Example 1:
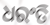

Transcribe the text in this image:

ଧରଂତି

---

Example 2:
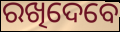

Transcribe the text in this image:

ରଖିଦେବେ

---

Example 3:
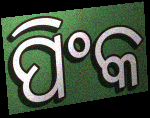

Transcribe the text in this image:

ପିଂକ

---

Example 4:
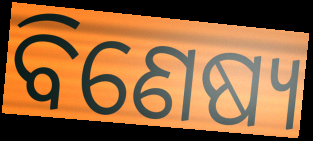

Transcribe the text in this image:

ବିଣେଷ୍ୟ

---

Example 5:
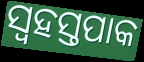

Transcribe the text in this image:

ସ୍ୱହସ୍ତପାକ